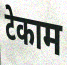
टेकाम